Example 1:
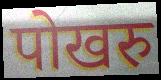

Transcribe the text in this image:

पोखरु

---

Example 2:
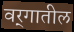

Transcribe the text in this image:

वर्गातील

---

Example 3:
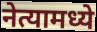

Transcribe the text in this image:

नेत्यामध्ये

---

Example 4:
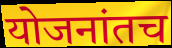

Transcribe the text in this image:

योजनांतच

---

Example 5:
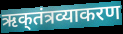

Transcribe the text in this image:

ऋक्‌तंत्रव्याकरण